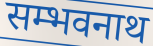
सम्भवनाथ